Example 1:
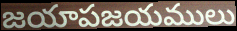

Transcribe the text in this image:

జయాపజయములు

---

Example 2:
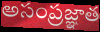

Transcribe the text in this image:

అసంప్రజ్ఞాత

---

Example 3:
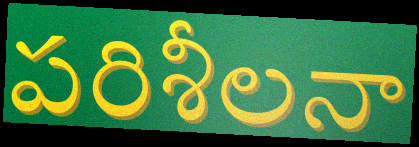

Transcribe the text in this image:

పరిశీలనా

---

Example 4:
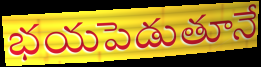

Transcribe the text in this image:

భయపెడుతూనే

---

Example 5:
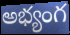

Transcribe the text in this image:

అభ్యంగ